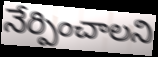
నేర్పించాలని